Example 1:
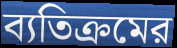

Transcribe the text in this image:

ব্যতিক্রমের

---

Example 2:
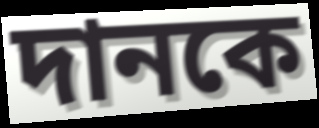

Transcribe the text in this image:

দানকে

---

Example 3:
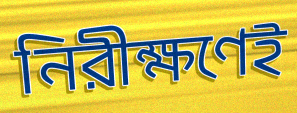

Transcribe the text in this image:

নিরীক্ষণেই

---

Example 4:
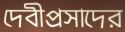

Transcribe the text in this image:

দেবীপ্রসাদের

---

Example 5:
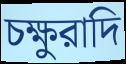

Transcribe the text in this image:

চক্ষুরাদি